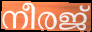
നീരജ്